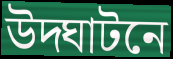
উদ্ঘাটনে